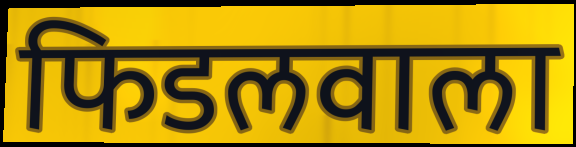
फिडलवाला